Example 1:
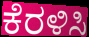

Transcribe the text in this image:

ಕೆರಳಿಸಿ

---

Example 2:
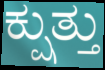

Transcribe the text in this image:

ಕ್ಷುತ್ತು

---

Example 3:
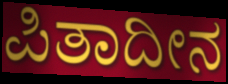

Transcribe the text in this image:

ಪಿತಾದೀನ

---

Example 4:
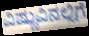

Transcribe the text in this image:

ವಿಷ್ಣುವಿನಲ್ಲಿಗೆ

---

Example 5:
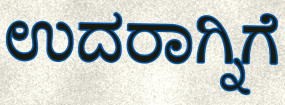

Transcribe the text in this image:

ಉದರಾಗ್ನಿಗೆ